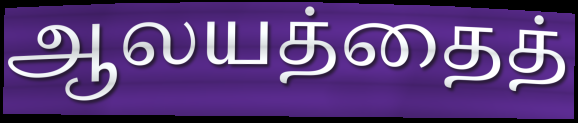
ஆலயத்தைத்